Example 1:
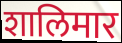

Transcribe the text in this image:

शालिमार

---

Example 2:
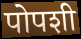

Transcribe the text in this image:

पोपशी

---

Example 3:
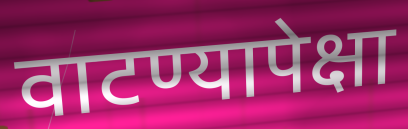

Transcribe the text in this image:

वाटण्यापेक्षा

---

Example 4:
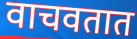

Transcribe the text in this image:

वाचवतात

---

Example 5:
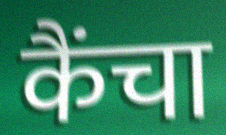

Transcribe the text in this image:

कैंचा